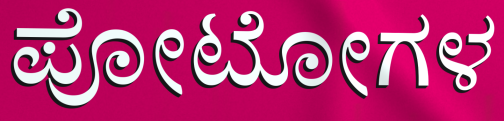
ಪೋಟೋಗಳ